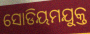
ସୋଡିୟମଯୁକ୍ତ